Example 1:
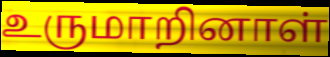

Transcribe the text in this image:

உருமாறினாள்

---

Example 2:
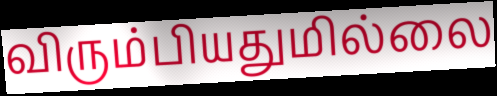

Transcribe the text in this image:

விரும்பியதுமில்லை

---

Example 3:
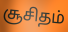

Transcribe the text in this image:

சூசிதம்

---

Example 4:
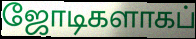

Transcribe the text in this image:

ஜோடிகளாகப்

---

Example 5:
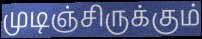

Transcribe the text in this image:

முடிஞ்சிருக்கும்